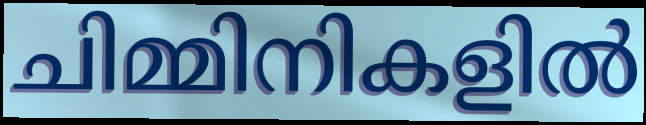
ചിമ്മിനികളിൽ